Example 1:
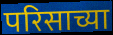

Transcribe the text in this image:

परिसाच्या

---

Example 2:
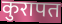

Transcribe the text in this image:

कुरापत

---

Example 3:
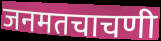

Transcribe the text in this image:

जनमतचाचणी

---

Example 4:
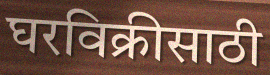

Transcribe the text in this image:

घरविक्रीसाठी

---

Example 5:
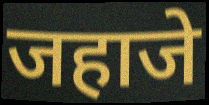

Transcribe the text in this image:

जहाजे